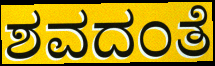
ಶವದಂತೆ